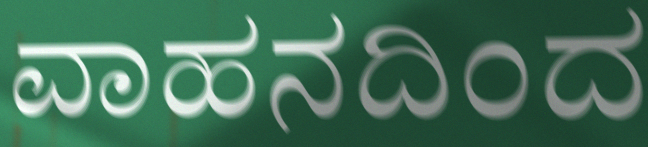
ವಾಹನದಿಂದ